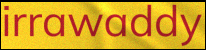
irrawaddy